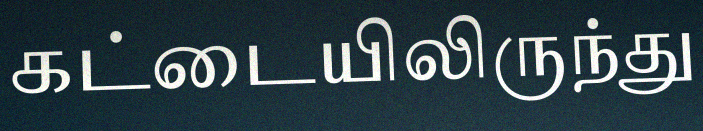
கட்டையிலிருந்து